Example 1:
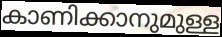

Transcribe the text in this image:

കാണിക്കാനുമുള്ള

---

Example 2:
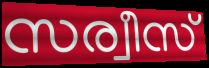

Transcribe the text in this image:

സര്വീസ്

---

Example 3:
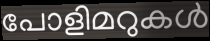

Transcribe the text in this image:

പോളിമറുകൾ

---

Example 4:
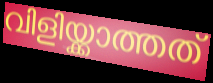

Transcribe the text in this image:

വിളിയ്ക്കാത്തത്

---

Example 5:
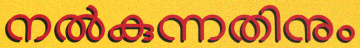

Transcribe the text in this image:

നൽകുന്നതിനും